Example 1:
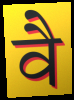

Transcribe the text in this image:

वै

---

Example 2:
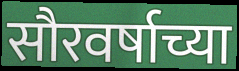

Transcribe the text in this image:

सौरवर्षाच्या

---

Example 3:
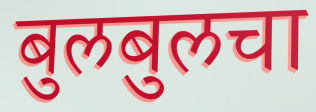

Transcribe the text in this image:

बुलबुलचा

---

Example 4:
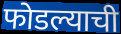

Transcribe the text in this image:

फोडल्याची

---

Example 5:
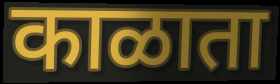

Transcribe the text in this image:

काळाता